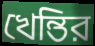
খেন্তির